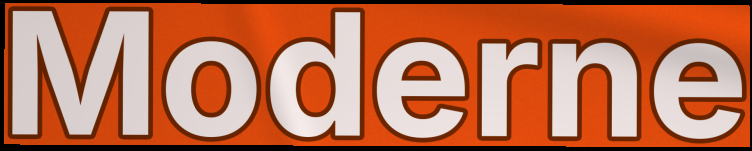
Moderne